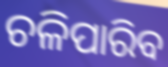
ଚଳିପାରିବ